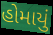
હોમાયું